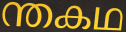
ന്തകഥ